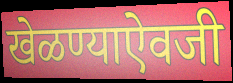
खेळण्याऐवजी